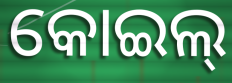
କୋଇଲ୍